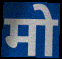
मो